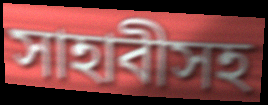
সাহাবীসহ